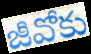
జీవోకు